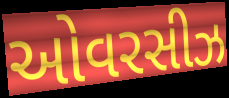
ઓવરસીઝ